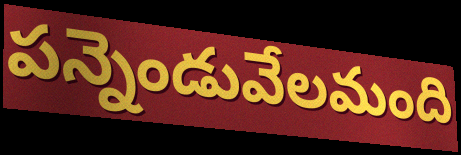
పన్నెండువేలమంది